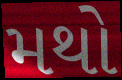
મથો